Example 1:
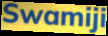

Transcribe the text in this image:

Swamiji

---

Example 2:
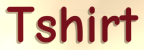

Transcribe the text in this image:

Tshirt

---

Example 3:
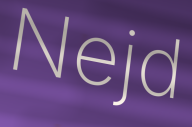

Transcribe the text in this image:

Nejd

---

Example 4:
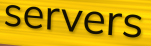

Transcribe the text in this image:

servers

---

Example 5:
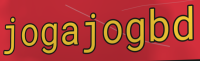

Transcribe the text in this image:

jogajogbd